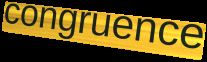
congruence